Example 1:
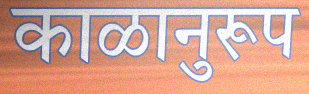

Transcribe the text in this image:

काळानुरूप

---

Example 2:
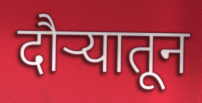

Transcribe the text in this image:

दौऱ्यातून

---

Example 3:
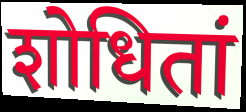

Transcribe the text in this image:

शोधितां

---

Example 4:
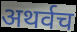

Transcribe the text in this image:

अथर्वच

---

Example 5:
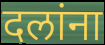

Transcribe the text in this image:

दलांना